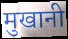
मुखानी